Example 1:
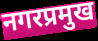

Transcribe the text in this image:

नगरप्रमुख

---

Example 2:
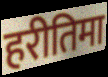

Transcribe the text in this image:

हरीतिमा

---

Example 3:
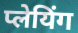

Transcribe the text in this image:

प्लेयिंग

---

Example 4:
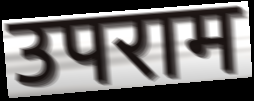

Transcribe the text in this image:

उपराम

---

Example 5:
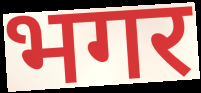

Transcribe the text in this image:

भगर